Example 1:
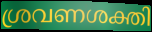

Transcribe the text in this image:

ശ്രവണശക്തി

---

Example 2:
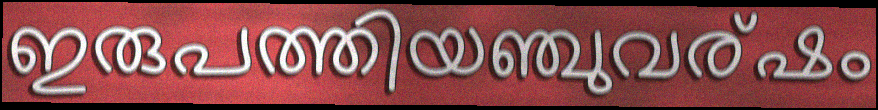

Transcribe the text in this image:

ഇരുപത്തിയഞ്ചുവര്ഷം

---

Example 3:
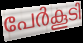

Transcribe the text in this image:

പേർകൂടി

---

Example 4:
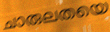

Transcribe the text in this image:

ചാരുലതയെ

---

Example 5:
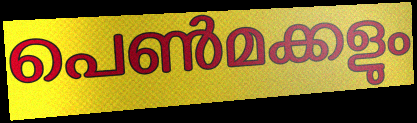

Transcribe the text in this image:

പെൺമക്കളും